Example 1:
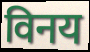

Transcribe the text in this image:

विनय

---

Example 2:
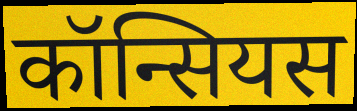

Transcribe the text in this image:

कॉन्सियस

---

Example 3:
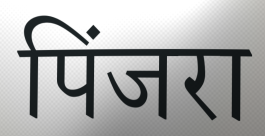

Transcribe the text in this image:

पिंजरा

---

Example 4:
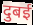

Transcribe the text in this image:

दुबई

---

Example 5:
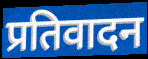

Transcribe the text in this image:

प्रतिवादन